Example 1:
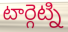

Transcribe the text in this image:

టార్గెట్ని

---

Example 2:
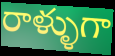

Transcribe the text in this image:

రాళ్ళుగా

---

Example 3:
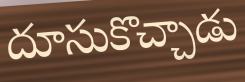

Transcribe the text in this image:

దూసుకొచ్చాడు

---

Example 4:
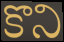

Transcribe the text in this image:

కొని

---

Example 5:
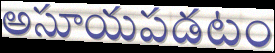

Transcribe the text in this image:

అసూయపడటం